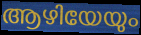
ആഴിയേയും